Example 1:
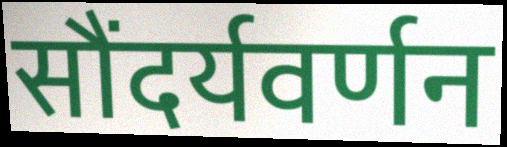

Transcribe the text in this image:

सौंदर्यवर्णन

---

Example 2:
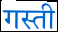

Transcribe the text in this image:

गस्ती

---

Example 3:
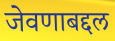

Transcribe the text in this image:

जेवणाबद्दल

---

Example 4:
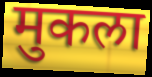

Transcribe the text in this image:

मुकला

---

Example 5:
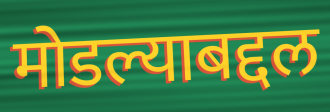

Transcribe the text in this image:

मोडल्याबद्दल